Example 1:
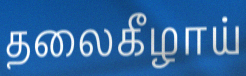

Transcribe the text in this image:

தலைகீழாய்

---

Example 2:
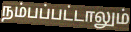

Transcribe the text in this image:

நம்பப்பட்டாலும்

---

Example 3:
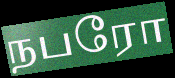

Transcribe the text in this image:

நபரோ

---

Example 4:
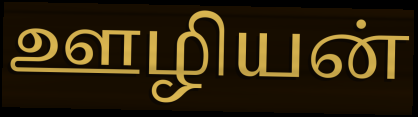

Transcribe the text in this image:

ஊழியன்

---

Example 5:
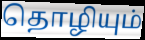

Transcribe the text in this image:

தொழியும்